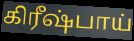
கிரீஷ்பாய்